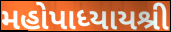
મહોપાધ્યાયશ્રી